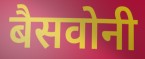
बैसवोनी